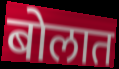
बोलात